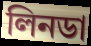
লিনডা